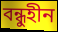
বন্ধুহীন